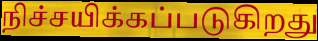
நிச்சயிக்கப்படுகிறது